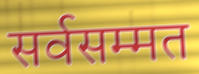
सर्वसम्मत